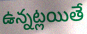
ఉన్నట్లయితే